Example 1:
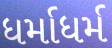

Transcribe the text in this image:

ધર્માધર્મ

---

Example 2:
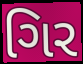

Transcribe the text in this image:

ગિર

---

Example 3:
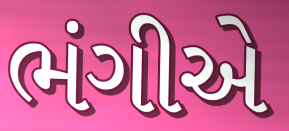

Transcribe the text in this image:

ભંગીએ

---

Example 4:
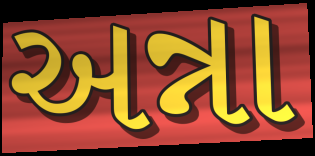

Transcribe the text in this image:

અન્ના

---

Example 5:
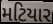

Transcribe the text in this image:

મટિયાર